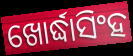
ଖୋର୍ଦ୍ଧାସିଂହ